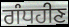
ਗੰਧਹੀਣ